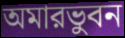
অমারভুবন